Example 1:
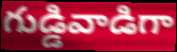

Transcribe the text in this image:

గుడ్డివాడిగా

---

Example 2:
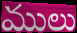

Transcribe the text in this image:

ములు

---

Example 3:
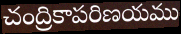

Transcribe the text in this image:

చంద్రికాపరిణయము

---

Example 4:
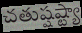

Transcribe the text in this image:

చతుష్షష్ట్యా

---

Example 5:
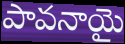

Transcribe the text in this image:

పావనాయై